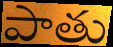
పాతు